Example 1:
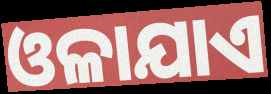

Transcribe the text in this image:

ଓଳାଯାଏ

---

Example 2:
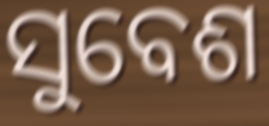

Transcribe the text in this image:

ସୁବେଶ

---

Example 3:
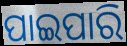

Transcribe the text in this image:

ପାଇପାରି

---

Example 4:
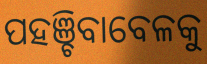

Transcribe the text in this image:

ପହଞ୍ଚିବାବେଳକୁ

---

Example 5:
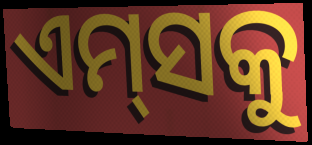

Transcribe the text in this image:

ଏମ୍‌ସକୁ